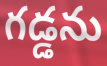
గడ్డను